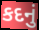
કદનું